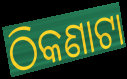
ଠିକଣାଟା